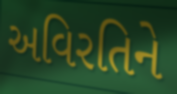
અવિરતિને